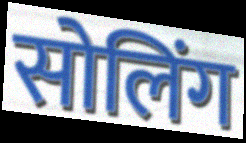
सोलिंग